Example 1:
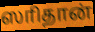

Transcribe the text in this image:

ஸரிதான்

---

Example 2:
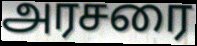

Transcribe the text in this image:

அரசரை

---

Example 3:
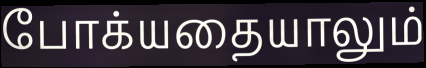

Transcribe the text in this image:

போக்யதையாலும்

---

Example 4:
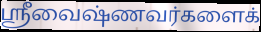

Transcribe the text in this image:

ஸ்ரீவைஷ்ணவர்களைக்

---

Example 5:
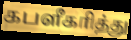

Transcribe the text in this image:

கபளீகரித்து